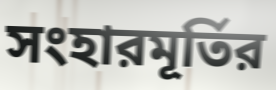
সংহারমূর্তির